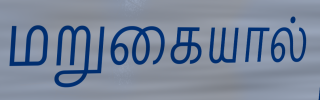
மறுகையால்